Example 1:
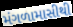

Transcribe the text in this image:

મંગળામાસીથી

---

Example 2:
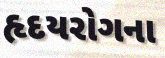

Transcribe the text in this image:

હૃદયરોગના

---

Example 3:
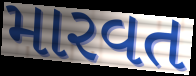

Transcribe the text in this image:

મારવત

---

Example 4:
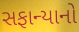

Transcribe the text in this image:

સફાન્યાનો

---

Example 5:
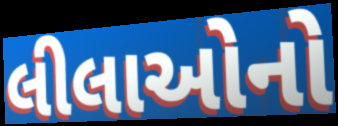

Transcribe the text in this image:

લીલાઓનો